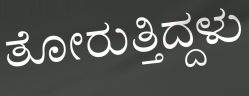
ತೋರುತ್ತಿದ್ದಳು